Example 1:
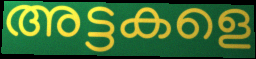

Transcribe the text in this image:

അട്ടകളെ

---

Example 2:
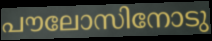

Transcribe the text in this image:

പൗലോസിനോടു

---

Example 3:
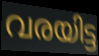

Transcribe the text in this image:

വരയിട്ട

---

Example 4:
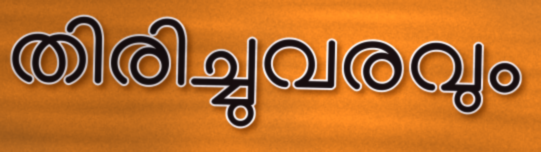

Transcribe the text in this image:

തിരിച്ചുവരവും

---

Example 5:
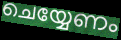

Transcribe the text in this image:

ചെയ്യേണം